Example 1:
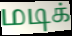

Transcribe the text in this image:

மடிக்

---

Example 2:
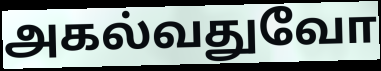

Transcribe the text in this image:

அகல்வதுவோ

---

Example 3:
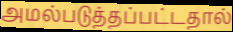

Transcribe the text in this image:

அமல்படுத்தப்பட்டதால்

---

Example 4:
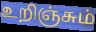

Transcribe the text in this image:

உறிஞ்சும்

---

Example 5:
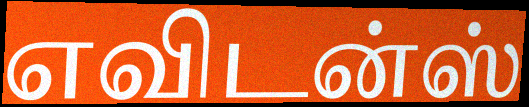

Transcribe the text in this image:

எவிடன்ஸ்